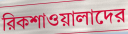
রিকশাওয়ালাদের